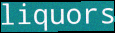
liquors